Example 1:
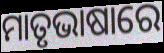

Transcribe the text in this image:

ମାତୃଭାଷାରେ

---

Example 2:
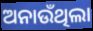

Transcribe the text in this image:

ଅନାଉଁଥିଲା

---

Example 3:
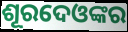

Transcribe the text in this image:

ଶୂରଦେଓଙ୍କର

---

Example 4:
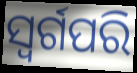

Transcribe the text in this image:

ସ୍ୱର୍ଗପରି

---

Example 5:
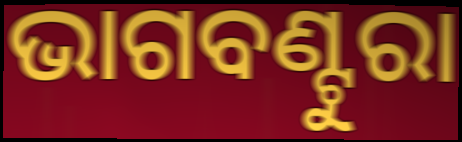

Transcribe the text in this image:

ଭାଗବଣ୍ଟୁରା